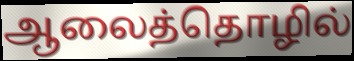
ஆலைத்தொழில்